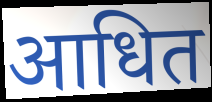
आधित